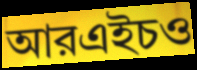
আরএইচও